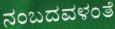
ನಂಬದವಳಂತೆ